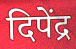
दिपेंद्र